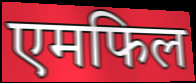
एमफिल